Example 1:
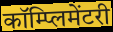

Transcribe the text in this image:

कॉम्प्लिमेंटरी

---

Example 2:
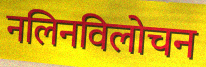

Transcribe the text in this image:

नलिनविलोचन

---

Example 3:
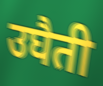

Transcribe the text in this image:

उघैती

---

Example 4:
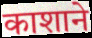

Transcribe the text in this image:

काशाने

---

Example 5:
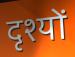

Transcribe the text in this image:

दृश्यों